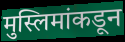
मुस्लिमांकडून